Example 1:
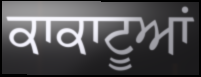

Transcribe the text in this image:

ਕਾਕਾਟੂਆਂ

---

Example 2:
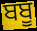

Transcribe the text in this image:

ਬਬੂ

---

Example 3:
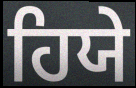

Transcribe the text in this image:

ਹਿਯੇ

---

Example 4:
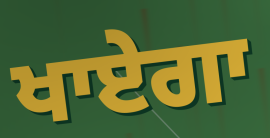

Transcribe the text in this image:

ਖਾਏਗਾ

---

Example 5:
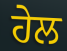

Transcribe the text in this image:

ਹੇਲ